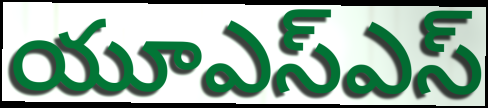
యూఎస్ఎస్